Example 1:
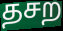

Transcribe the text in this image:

தசற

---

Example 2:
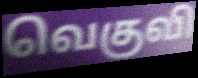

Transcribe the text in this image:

வெகுவி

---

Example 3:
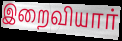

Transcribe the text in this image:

இறைவியார்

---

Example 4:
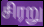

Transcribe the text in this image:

சிரறு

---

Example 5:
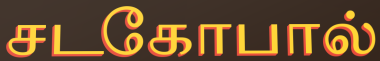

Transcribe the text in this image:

சடகோபால்